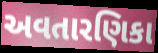
અવતારણિકા